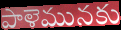
పాళెమునకు